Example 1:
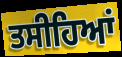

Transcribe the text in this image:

ਤਸੀਹਿਆਂ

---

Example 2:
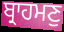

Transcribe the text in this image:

ਬ੍ਰਾਹਮਣੁ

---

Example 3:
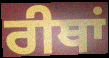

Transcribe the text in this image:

ਰੀਥਾਂ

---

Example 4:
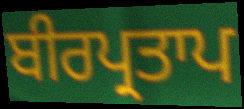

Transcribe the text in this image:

ਬੀਰਪ੍ਰਤਾਪ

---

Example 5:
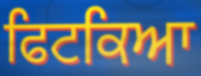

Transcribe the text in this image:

ਫਿਟਕਿਆ